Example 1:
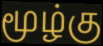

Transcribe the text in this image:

மூழ்கு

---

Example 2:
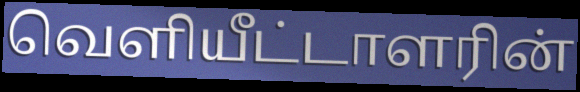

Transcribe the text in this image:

வெளியீட்டாளரின்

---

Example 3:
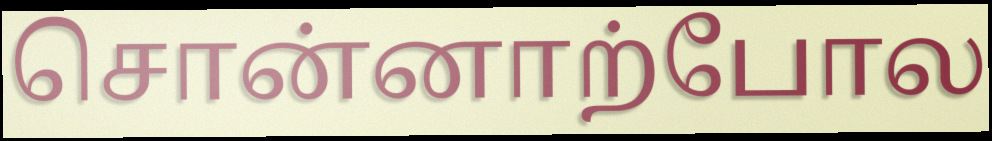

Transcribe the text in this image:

சொன்னாற்போல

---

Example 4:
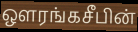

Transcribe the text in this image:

ஔரங்கசீபின்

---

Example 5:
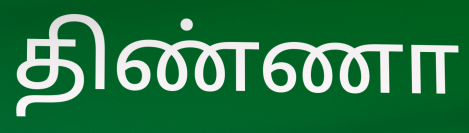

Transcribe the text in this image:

திண்ணா